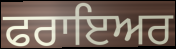
ਫਰਾਇਅਰ